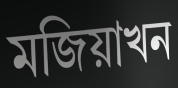
মজিয়াখন